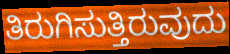
ತಿರುಗಿಸುತ್ತಿರುವುದು